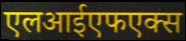
एलआईएफएक्स